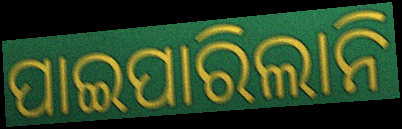
ପାଇପାରିଲାନି